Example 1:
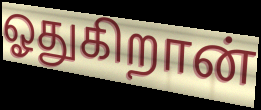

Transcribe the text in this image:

ஓதுகிறான்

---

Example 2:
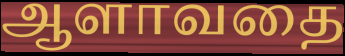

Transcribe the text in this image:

ஆளாவதை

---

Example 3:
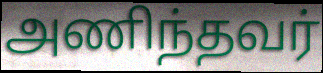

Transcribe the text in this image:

அணிந்தவர்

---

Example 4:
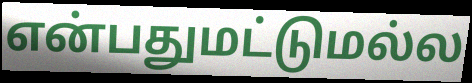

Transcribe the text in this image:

என்பதுமட்டுமல்ல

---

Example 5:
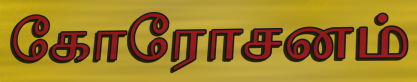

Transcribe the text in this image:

கோரோசனம்